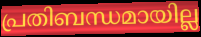
പ്രതിബന്ധമായില്ല